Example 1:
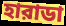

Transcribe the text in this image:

হারাডা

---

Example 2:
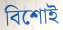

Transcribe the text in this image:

বিশোই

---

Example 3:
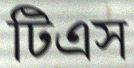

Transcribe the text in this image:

টিএস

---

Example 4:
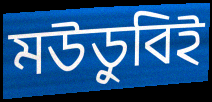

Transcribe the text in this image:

মউডুবিই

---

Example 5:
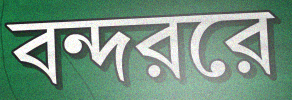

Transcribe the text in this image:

বন্দররে